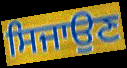
ਸਿਜਾਉਣ